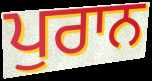
ਪੁਰਾਨ